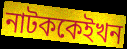
নাটককেইখন